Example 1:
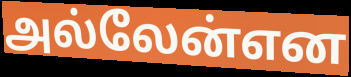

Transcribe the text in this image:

அல்லேன்என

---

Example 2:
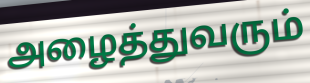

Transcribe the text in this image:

அழைத்துவரும்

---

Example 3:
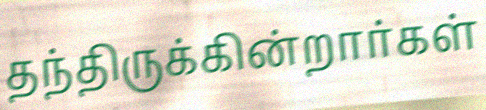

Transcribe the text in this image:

தந்திருக்கின்றார்கள்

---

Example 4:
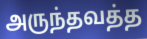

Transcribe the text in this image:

அருந்தவத்த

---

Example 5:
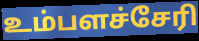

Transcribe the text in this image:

உம்பளச்சேரி